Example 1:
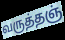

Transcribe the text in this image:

வருத்தஞ்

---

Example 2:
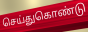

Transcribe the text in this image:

செய்துகொண்டு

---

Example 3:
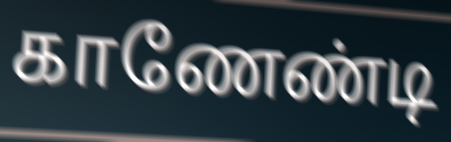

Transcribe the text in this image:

காணேண்டி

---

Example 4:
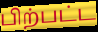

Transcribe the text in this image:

பிற்பட்ட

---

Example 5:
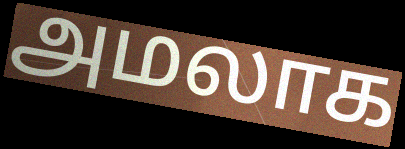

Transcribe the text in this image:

அமலாக